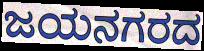
ಜಯನಗರದ